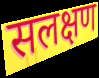
सलक्षण